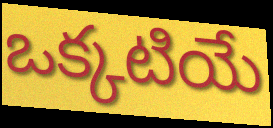
ఒక్కటియే